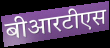
बीआरटीएस